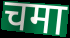
चमा